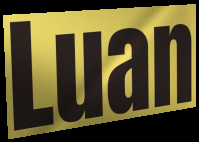
Luan